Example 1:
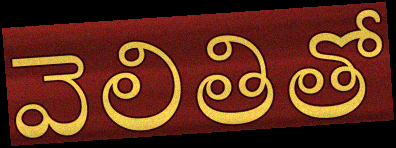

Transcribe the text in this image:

వెలితితో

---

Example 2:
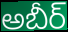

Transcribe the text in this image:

అబీర్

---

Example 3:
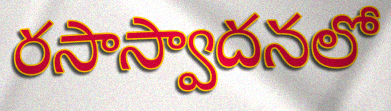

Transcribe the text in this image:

రసాస్వాదనలో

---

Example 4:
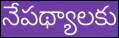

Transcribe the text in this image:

నేపథ్యాలకు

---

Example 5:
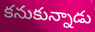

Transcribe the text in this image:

కనుకున్నాడు